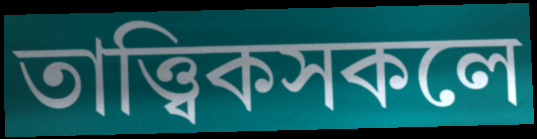
তাত্ত্বিকসকলে